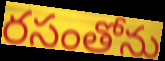
రసంతోను